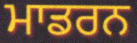
ਮਾਡਰਨ